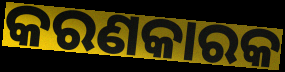
କରଣକାରକ